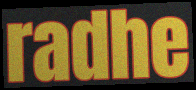
radhe